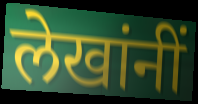
लेखांनीं